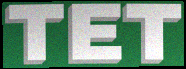
TET